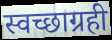
स्वच्छाग्रही